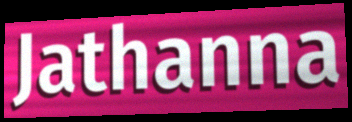
Jathanna